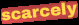
scarcely